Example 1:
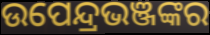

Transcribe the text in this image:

ଉପେନ୍ଦ୍ରଭଞ୍ଜଙ୍କର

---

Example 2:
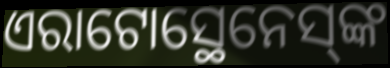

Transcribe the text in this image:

ଏରାଟୋସ୍ଥେନେସ୍‌ଙ୍କ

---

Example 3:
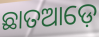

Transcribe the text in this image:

ଛାତଆଡ଼େ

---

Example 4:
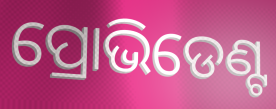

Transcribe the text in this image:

ପ୍ରୋଭିଡେଣ୍ଟ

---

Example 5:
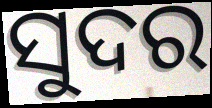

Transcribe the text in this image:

ସୁଦର